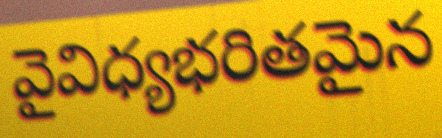
వైవిధ్యభరితమైన